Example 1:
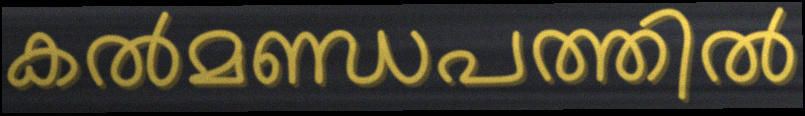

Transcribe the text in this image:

കൽമണ്ഡപത്തിൽ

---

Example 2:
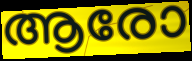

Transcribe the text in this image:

ആരോ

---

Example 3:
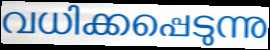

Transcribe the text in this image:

വധിക്കപ്പെടുന്നു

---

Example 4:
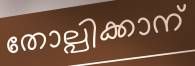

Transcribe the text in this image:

തോല്പിക്കാന്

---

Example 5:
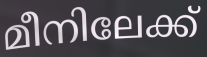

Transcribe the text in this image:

മീനിലേക്ക്